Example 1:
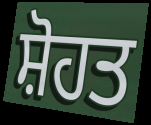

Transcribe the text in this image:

ਸ਼ੋਹਤ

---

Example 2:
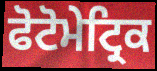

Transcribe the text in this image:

ਫੋਟੋਮੇਟ੍ਰਿਕ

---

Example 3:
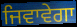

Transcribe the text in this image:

ਜਿਵਾਵੇਗਾ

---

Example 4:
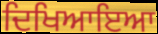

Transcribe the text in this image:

ਦਿਖਿਆਇਆ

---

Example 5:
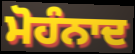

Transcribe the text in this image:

ਮੋਹੰਨਾਦ